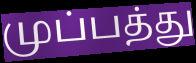
முப்பத்து